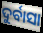
ଦୁର୍ବାସା